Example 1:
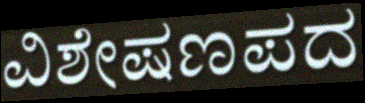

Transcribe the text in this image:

ವಿಶೇಷಣಪದ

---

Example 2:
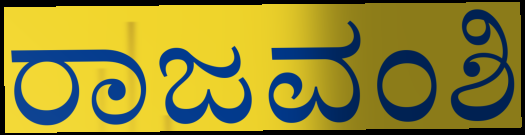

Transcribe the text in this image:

ರಾಜವಂಶಿ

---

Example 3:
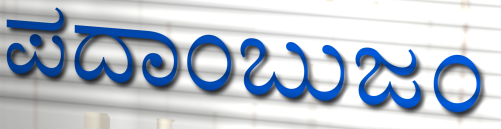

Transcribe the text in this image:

ಪದಾಂಬುಜಂ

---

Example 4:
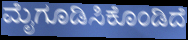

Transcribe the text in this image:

ಮೈಗೂಡಿಸಿಕೊಂಡಿದೆ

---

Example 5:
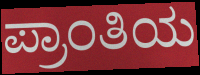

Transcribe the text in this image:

ಪ್ರಾಂತಿಯ